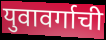
युवावर्गाची